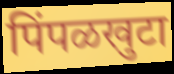
पिंपळखुटा